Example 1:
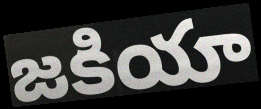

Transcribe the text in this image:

జకియా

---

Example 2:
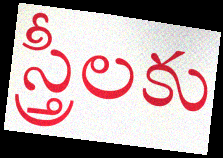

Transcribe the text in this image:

స్త్రీలకు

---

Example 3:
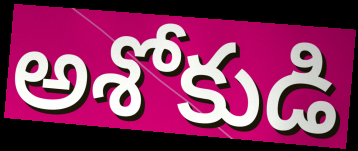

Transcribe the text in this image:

అశోకుడి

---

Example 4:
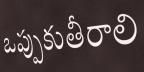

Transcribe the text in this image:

ఒప్పుకుతీరాలి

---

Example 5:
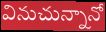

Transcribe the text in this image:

వినుచున్నానో